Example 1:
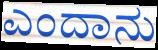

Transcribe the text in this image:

ಎಂದಾನು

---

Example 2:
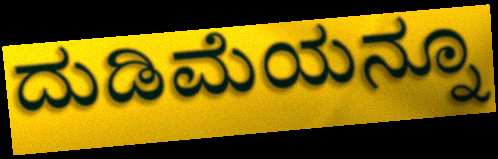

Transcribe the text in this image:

ದುಡಿಮೆಯನ್ನೂ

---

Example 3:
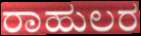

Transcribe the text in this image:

ರಾಹುಲರ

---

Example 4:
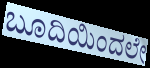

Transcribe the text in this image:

ಬೂದಿಯಿಂದಲೇ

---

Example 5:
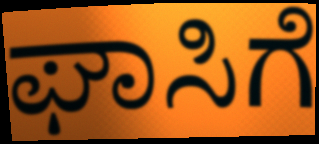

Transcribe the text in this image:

ಘಾಸಿಗೆ